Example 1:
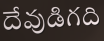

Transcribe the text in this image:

దేవుడిగది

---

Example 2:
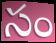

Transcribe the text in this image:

సం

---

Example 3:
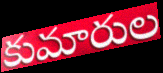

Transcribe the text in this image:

కుమారుల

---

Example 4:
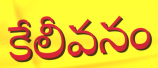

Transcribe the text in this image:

కేలీవనం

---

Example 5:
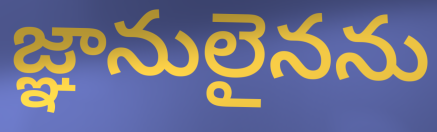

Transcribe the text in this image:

జ్ఞానులైనను